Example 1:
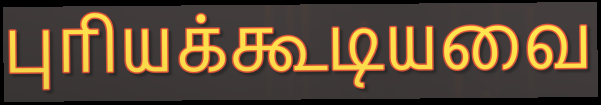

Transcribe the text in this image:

புரியக்கூடியவை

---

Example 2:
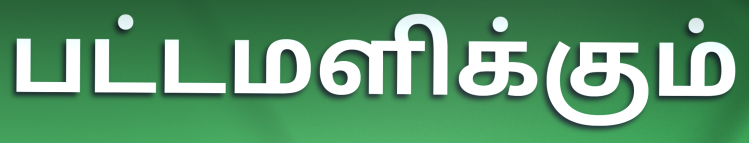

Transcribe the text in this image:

பட்டமளிக்கும்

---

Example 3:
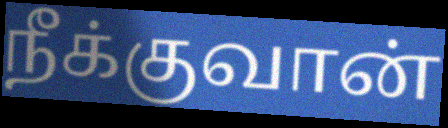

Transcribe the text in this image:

நீக்குவான்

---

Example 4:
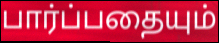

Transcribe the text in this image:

பார்ப்பதையும்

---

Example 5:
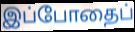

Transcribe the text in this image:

இப்போதைப்